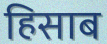
हिसाब